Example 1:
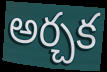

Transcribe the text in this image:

అర్చక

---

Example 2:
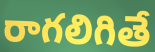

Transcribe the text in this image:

రాగలిగితే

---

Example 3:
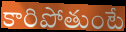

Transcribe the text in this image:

కారిపోతుంటే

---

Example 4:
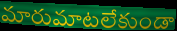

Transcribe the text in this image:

మారుమాటలేకుండా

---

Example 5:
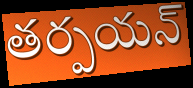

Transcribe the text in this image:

తర్పయన్